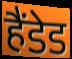
हैंडेड